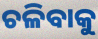
ଚଳିବାକୁ